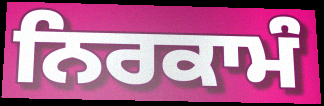
ਨਿਰਕਾਮੰ